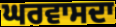
ਘਰਵਾਸਦਾ